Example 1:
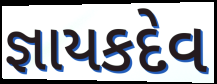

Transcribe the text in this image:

જ્ઞાયકદેવ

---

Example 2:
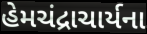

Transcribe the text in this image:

હેમચંદ્રાચાર્યના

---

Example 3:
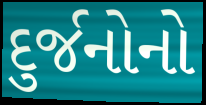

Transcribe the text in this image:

દુર્જનોનો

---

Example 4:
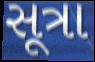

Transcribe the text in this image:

સૂત્રા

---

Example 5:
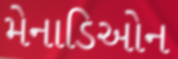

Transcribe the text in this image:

મેનાડિઓન